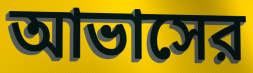
আভাসের